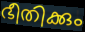
ഭീതിക്കും